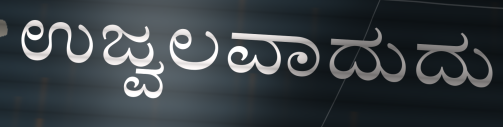
ಉಜ್ವಲವಾದುದು